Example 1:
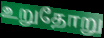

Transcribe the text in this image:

உறுதோறு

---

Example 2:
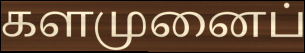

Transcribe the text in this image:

களமுனைப்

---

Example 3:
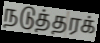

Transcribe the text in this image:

நடுத்தரக்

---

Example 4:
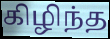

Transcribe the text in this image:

கிழிந்த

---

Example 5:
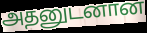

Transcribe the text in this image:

அதனுடனான